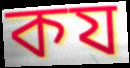
কয